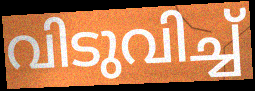
വിടുവിച്ച്